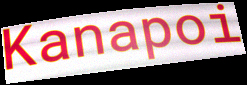
Kanapoi